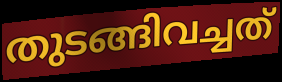
തുടങ്ങിവച്ചത്